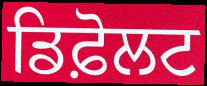
ਡਿਫ਼ੋਲਟ